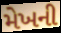
મેખની